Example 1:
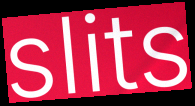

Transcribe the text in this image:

slits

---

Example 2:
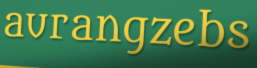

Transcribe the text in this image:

aurangzebs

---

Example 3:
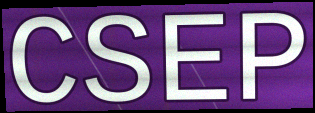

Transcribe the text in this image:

CSEP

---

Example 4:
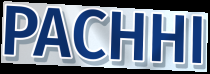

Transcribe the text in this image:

PACHHI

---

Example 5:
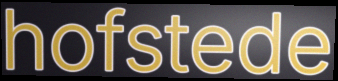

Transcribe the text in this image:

hofstede